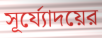
সূর্য্যোদয়ের